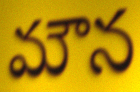
మౌన